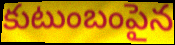
కుటుంబంపైన